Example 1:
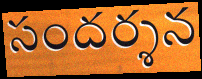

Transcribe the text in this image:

సందర్శన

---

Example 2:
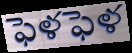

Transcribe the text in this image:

ఫెళఫెళ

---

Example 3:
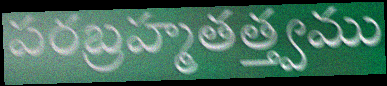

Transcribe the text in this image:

పరబ్రహ్మతత్త్వము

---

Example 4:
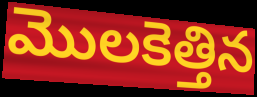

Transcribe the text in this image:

మొలకెత్తిన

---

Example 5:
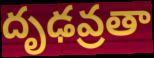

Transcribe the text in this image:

దృఢవ్రతా